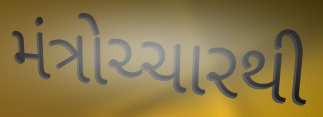
મંત્રોચ્ચારથી